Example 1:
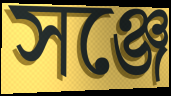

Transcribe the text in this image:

সঞ্জে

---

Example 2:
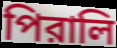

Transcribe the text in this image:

পিরালি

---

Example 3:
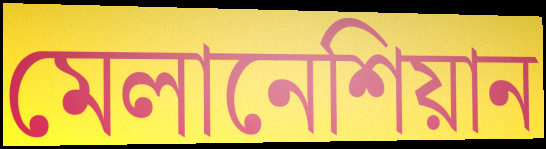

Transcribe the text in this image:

মেলানেশিয়ান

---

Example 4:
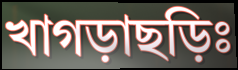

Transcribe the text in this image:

খাগড়াছড়িঃ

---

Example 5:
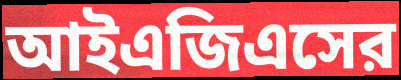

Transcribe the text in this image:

আইএজিএসের